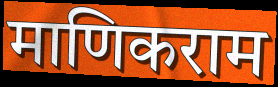
माणिकराम